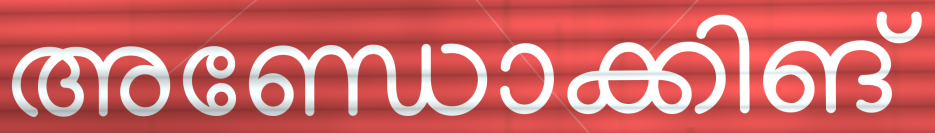
അണ്ഡോക്കിങ്